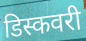
डिस्कवरी